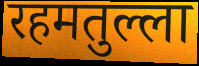
रहमतुल्ला